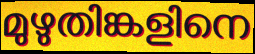
മുഴുതിങ്കളിനെ